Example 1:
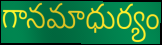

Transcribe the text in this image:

గానమాధుర్యం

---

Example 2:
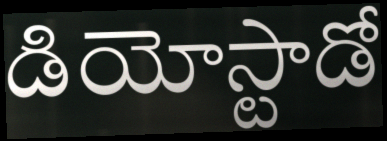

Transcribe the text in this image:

డియోస్టాడో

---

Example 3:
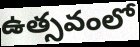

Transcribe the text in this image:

ఉత్సవంలో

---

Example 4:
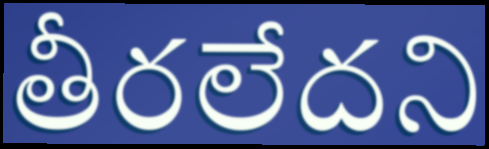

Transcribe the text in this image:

తీరలేదని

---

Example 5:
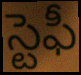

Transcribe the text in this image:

స్టెఫీ